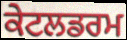
ਕੇਟਲਡਰਮ